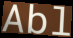
Abl